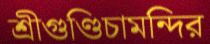
শ্রীগুণ্ডিচামন্দির